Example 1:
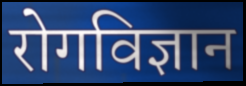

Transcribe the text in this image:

रोगविज्ञान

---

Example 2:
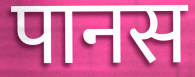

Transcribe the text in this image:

पानस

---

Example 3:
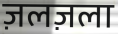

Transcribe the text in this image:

ज़लज़ला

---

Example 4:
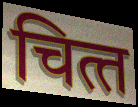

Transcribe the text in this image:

चित्‍त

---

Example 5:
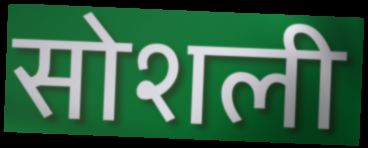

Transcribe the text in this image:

सोशली